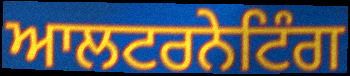
ਆਲਟਰਨੇਟਿੰਗ